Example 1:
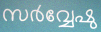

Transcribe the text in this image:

സർവ്വേഷു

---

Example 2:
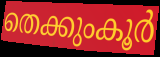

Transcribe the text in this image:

തെക്കുംകൂർ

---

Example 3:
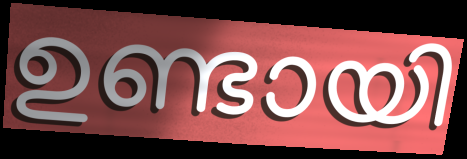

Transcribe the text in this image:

ഉണ്ടായി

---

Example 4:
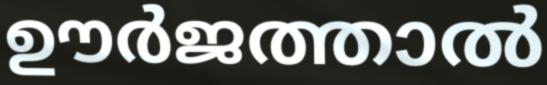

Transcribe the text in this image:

ഊർജത്താൽ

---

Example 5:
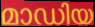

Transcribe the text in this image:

മാഡിയ